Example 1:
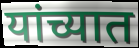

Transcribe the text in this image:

यांच्यात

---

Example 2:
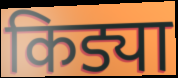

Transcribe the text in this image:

किड्या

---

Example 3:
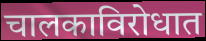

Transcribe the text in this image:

चालकाविरोधात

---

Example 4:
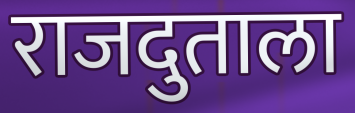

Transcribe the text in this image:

राजदुताला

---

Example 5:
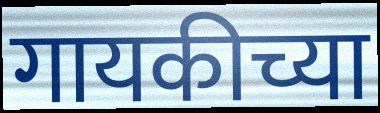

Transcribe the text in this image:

गायकीच्या